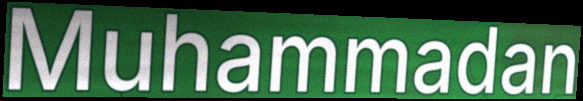
Muhammadan